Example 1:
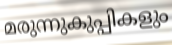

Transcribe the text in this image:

മരുന്നുകുപ്പികളും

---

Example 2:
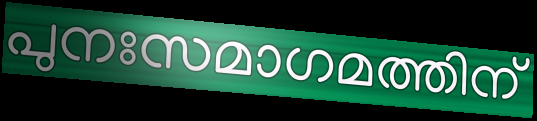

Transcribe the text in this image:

പുനഃസമാഗമത്തിന്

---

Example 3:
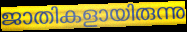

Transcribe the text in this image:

ജാതികളായിരുന്നു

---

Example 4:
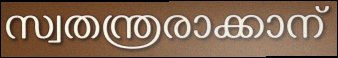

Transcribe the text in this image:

സ്വതന്ത്രരാക്കാന്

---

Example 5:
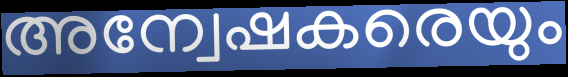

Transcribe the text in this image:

അന്വേഷകരെയും